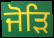
ਜੋੜਿ